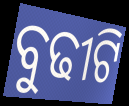
ବୁଢୀଟି